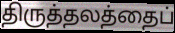
திருத்தலத்தைப்